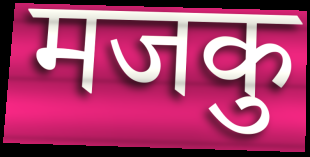
मजकु